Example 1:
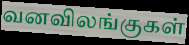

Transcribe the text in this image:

வனவிலங்குகள்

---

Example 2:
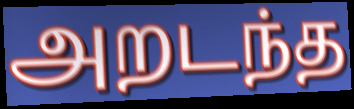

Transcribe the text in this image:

அறடந்த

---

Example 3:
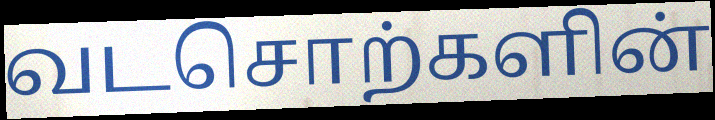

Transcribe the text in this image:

வடசொற்களின்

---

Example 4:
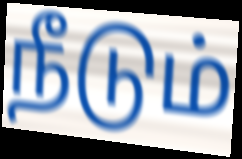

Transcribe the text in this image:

நீடும்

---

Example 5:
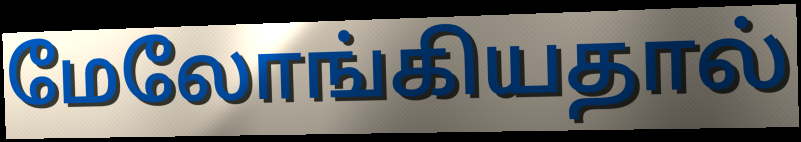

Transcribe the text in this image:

மேலோங்கியதால்